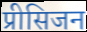
प्रीसिजन